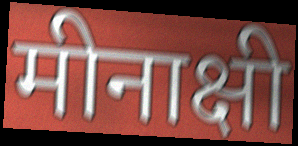
मीनाक्षी